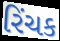
રિંચક